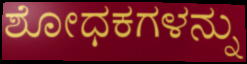
ಶೋಧಕಗಳನ್ನು